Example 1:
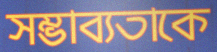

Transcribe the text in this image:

সম্ভাব্যতাকে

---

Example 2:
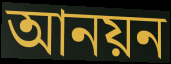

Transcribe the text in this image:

আনয়ন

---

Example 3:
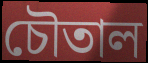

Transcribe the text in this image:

চৌতাল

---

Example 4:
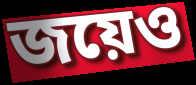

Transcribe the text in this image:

জয়েও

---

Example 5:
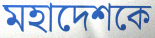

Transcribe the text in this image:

মহাদেশকে